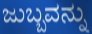
ಜುಬ್ಬವನ್ನು